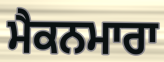
ਮੈਕਨਮਾਰਾ